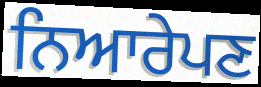
ਨਿਆਰੇਪਣ